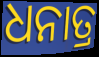
ଧନାତ୍ର